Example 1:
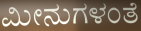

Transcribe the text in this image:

ಮೀನುಗಳಂತೆ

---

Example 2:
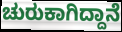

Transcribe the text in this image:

ಚುರುಕಾಗಿದ್ದಾನೆ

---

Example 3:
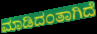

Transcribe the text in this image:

ಮಾಡಿದಂತಾಗಿದೆ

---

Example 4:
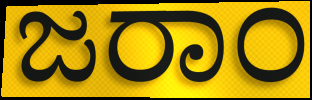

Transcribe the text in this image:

ಜರಾಂ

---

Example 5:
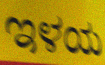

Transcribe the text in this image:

ಇಳಯ